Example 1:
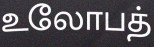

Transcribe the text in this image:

உலோபத்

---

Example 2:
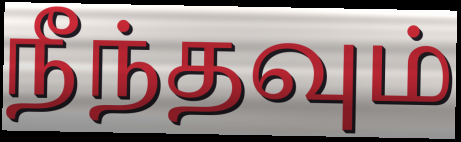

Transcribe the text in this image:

நீந்தவும்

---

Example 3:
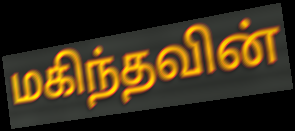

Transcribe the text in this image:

மகிந்தவின்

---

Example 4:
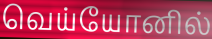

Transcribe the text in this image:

வெய்யோனில்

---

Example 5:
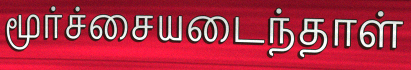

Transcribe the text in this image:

மூர்ச்சையடைந்தாள்